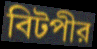
বিটপীর